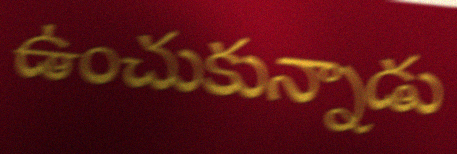
ఉంచుకున్నాడు